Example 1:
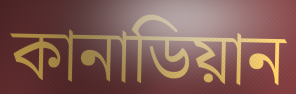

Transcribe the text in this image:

কানাডিয়ান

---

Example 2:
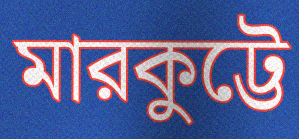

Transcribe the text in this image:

মারকুট্টে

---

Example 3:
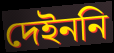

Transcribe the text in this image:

দেইননি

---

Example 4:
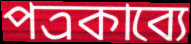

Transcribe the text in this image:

পত্রকাব্যে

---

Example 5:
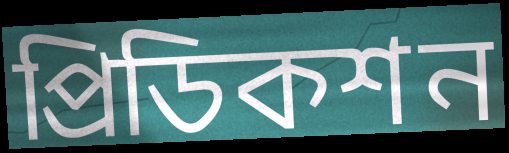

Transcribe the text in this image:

প্রিডিকশন